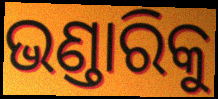
ଭଣ୍ଡାରିକୁ